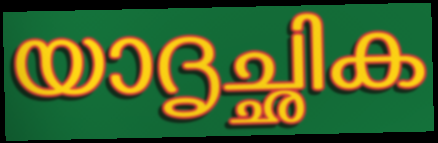
യാദൃച്ഛിക